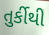
તુર્કીથી